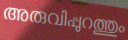
അരുവിപ്പുറത്തും